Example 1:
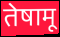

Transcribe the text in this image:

तेषामू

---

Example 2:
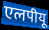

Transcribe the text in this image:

एलपीयू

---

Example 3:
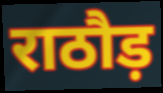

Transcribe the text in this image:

राठौड़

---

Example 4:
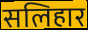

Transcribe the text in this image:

सलिहार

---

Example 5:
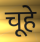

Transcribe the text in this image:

चूहे